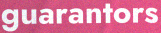
guarantors